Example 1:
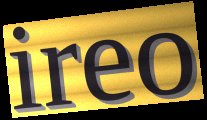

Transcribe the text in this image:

ireo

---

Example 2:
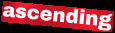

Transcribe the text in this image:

ascending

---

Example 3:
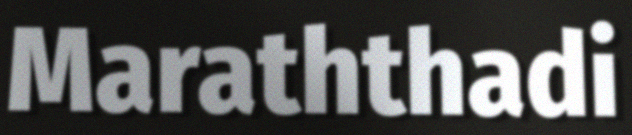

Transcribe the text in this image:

Maraththadi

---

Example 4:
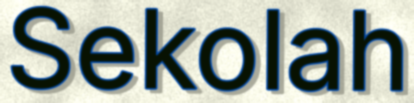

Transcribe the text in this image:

Sekolah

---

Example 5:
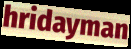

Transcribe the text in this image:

hridayman